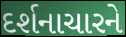
દર્શનાચારને